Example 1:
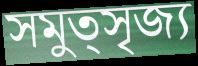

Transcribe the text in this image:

সমুত্সৃজ্য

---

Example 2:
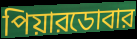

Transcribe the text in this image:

পিয়ারডোবার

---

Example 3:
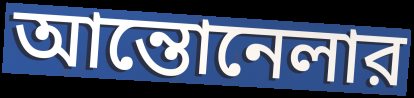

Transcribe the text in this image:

আন্তোনেলার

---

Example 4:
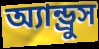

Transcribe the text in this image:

অ্যান্ড্রুস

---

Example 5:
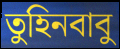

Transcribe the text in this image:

তুহিনবাবু